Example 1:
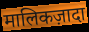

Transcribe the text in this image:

मालिकज़ादा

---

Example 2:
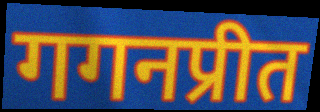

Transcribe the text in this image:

गगनप्रीत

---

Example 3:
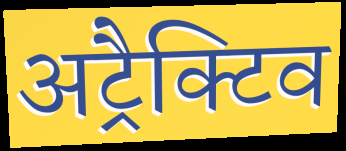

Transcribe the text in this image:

अट्रैक्टिव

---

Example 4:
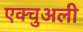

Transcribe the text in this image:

एक्चुअली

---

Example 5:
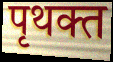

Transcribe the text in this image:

पृथक्त